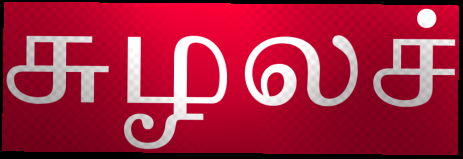
சுழலச்